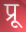
प्रू